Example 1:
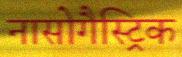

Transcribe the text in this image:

नासोगैस्ट्रिक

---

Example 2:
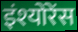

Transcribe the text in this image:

इंश्योरेंस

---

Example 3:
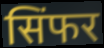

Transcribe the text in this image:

सिंफर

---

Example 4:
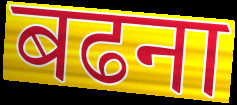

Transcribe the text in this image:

बढना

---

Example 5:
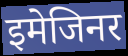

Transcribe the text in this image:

इमेजिनर